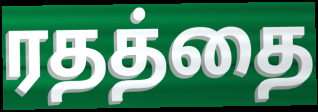
ரதத்தை